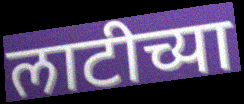
लाटीच्या